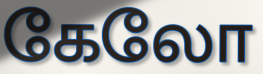
கேலோ